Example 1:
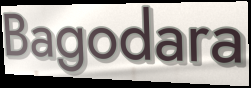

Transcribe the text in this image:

Bagodara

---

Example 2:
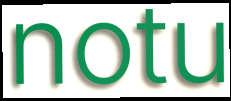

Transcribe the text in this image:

notu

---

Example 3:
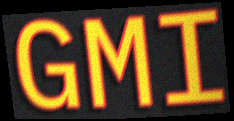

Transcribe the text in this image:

GMI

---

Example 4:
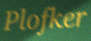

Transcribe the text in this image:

Plofker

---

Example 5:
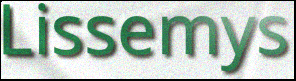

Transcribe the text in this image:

Lissemys